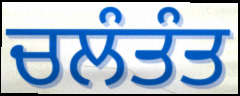
ਚਲੰਤੰਤ